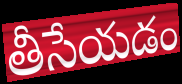
తీసేయడం